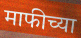
माफीच्या